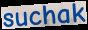
suchak